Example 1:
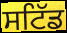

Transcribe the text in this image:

ਸਟਿੱਡ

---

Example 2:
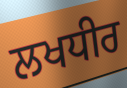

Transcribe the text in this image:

ਲਖਧੀਰ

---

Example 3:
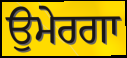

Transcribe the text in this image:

ਉਮੇਰਗਾ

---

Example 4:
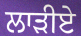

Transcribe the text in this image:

ਲਾੜੀਏ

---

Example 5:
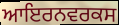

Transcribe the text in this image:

ਆਇਰਨਵਰਕਸ